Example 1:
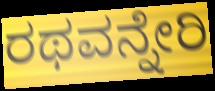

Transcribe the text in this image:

ರಥವನ್ನೇರಿ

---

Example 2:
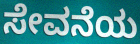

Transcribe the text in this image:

ಸೇವನೆಯ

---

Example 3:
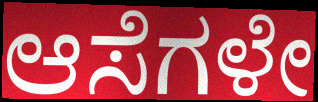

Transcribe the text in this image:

ಆಸೆಗಳೇ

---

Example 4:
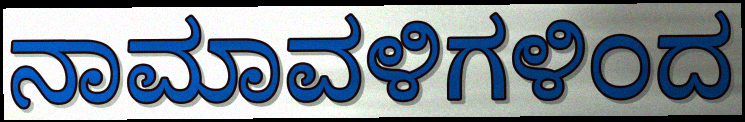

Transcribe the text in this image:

ನಾಮಾವಳಿಗಳಿಂದ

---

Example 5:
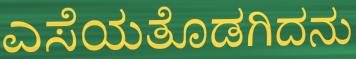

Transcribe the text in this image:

ಎಸೆಯತೊಡಗಿದನು